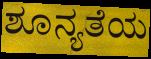
ಶೂನ್ಯತೆಯ